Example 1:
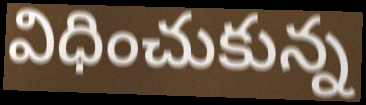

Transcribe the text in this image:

విధించుకున్న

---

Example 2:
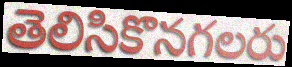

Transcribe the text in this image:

తెలిసికొనగలరు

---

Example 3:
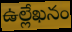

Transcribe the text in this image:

ఉల్లేఖనం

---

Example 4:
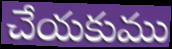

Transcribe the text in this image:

చేయకుము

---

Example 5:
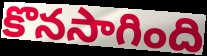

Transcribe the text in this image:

కొనసాగింది